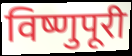
विष्णुपूरी